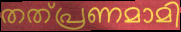
തത്പ്രണമാമി